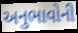
અનુભાવોની